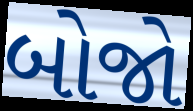
બોજો